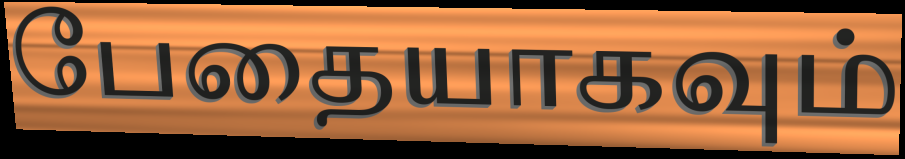
பேதையாகவும்